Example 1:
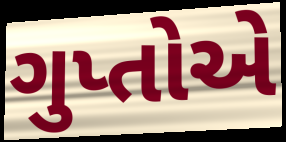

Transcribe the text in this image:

ગુપ્તોએ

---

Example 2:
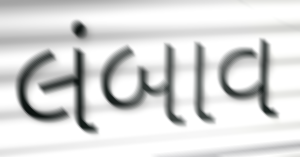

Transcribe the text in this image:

લંબાવ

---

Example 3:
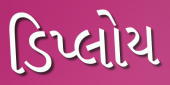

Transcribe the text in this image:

ડિપ્લોય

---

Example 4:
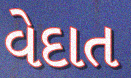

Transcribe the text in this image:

વેદાત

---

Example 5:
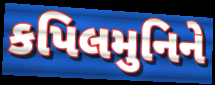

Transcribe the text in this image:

કપિલમુનિને